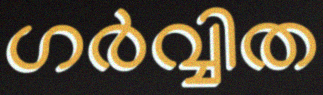
ഗർവ്വിത